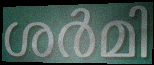
ശർമി